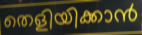
തെളിയിക്കാൻ